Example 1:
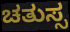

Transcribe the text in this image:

ಚತುಸ್ಸ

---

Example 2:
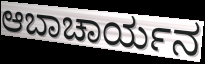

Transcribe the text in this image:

ಆಬಾಚಾರ್ಯನ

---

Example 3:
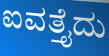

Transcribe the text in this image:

ಐವತ್ತೈದು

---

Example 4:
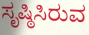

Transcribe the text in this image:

ಸೃಷ್ಠಿಸಿರುವ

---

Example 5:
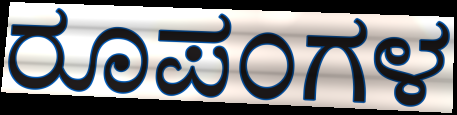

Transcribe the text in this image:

ರೂಪಂಗಳ